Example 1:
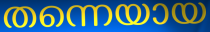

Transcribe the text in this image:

തന്നെയായ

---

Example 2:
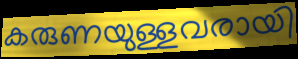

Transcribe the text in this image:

കരുണയുള്ളവരായി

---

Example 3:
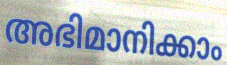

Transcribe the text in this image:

അഭിമാനിക്കാം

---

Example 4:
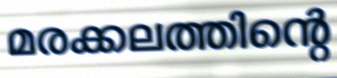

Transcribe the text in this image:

മരക്കലത്തിന്റെ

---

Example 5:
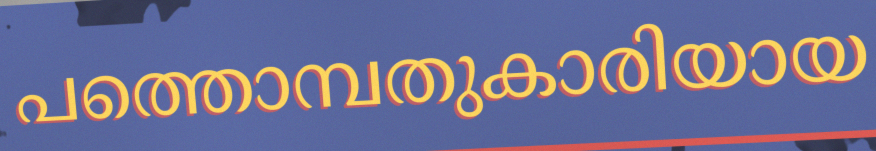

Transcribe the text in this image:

പത്തൊമ്പതുകാരിയായ